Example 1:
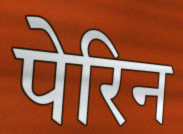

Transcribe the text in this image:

पेरिन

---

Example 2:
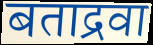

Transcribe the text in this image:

बताद्रवा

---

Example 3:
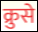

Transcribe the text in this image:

क्रुसे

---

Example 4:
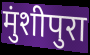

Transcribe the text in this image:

मुंशीपुरा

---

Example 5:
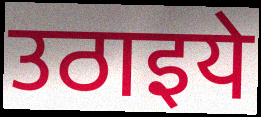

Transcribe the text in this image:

उठाइये